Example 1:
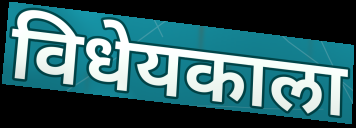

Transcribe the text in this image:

विधेयकाला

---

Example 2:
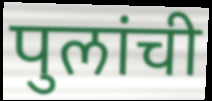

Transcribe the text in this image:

पुलांची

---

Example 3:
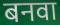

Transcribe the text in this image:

बनवा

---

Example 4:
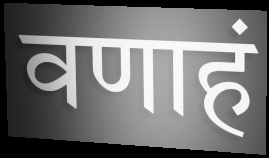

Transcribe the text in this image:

वणाहं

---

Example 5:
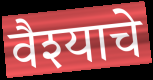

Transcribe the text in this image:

वैश्याचे